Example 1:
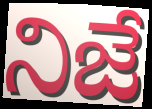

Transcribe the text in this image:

నిజే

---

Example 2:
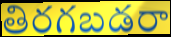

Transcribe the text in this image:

తిరగబడరా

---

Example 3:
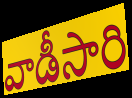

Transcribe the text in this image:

వాడీసారి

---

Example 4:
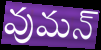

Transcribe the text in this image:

వుమన్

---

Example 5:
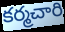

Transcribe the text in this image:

కర్మచారి